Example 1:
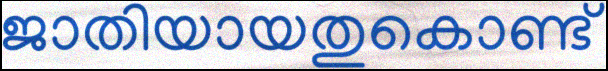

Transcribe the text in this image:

ജാതിയായതുകൊണ്ട്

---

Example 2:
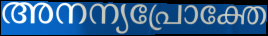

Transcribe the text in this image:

അനന്യപ്രോക്തേ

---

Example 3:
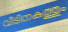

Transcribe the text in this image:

വീടിനകത്തും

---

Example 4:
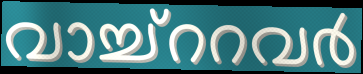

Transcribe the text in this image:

വാച്ച്ററവർ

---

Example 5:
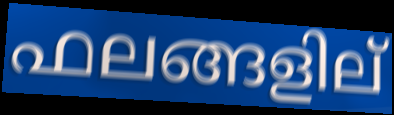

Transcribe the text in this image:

ഫലങ്ങളില്